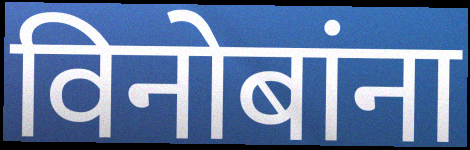
विनोबांना